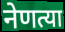
नेणत्या